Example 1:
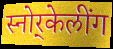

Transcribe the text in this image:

स्नोर्केलींग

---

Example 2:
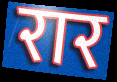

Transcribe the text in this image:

रार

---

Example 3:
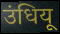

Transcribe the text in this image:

उंधियू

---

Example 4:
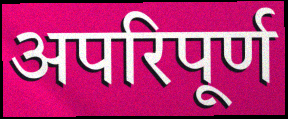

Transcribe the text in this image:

अपरिपूर्ण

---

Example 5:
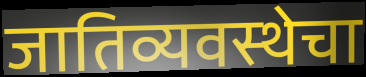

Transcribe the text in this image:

जातिव्यवस्थेचा